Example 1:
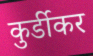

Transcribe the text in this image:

कुर्डीकर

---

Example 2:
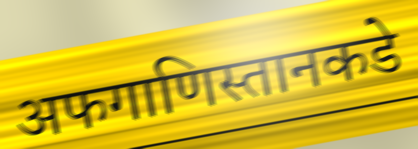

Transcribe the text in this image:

अफगाणिस्तानकडे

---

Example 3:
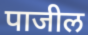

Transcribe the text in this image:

पाजील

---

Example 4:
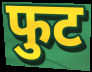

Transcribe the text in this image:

फुट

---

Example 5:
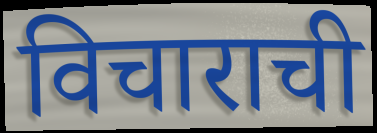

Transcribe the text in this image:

विचाराची